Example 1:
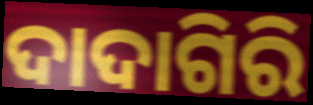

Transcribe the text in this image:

ଦାଦାଗିରି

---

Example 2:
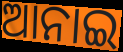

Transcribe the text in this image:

ଆନାଇ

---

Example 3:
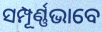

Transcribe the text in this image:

ସମ୍ପୂର୍ଣ୍ଣଭାବେ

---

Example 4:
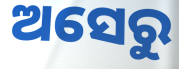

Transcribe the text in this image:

ଅସେରୁ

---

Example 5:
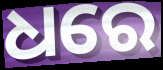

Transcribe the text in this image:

ଧରେ